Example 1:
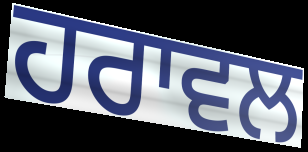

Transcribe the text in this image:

ਹਰਾਵਲ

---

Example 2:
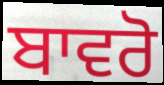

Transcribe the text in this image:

ਬਾਵਰੋ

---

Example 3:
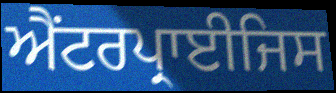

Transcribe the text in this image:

ਐਂਟਰਪ੍ਰਾਈਜਿਸ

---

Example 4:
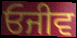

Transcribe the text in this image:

ਓਜੀਵ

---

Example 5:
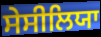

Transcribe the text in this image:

ਸੇਸੀਲਿਯਾ